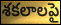
శకలాలపై